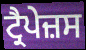
ਟ੍ਰੈਪੇਜ਼ਸ